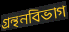
গ্রন্থনবিভাগ